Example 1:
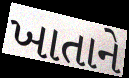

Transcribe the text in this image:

ખાતાને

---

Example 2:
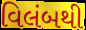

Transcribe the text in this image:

વિલંબથી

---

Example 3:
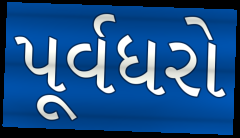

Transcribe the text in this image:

પૂર્વધરો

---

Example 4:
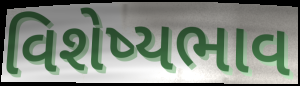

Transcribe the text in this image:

વિશેષ્યભાવ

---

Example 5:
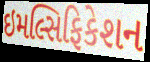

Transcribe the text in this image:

ઇમલ્સિફિકેશન